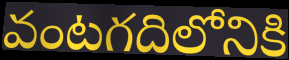
వంటగదిలోనికి